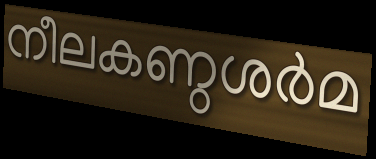
നീലകണ്ഠശർമ